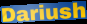
Dariush